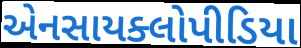
એનસાયક્લોપીડિયા